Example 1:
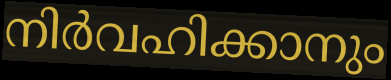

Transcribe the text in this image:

നിർവഹിക്കാനും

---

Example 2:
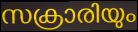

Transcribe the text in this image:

സക്രാരിയും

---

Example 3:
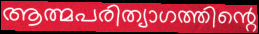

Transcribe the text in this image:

ആത്മപരിത്യാഗത്തിന്റെ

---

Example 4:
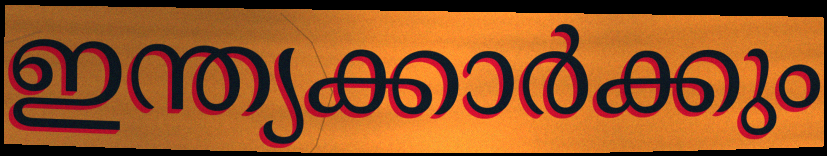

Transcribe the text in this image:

ഇന്ത്യക്കാർക്കും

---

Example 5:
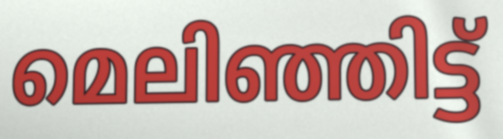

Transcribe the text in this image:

മെലിഞ്ഞിട്ട്